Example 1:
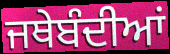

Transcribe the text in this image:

ਜਥੇਬੰਦੀਆਂ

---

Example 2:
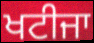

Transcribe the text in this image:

ਖਟੀਜਾ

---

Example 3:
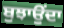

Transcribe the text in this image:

ਬੁਝਾਉਂਦਾ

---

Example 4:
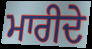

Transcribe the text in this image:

ਮਾਰੀਦੇ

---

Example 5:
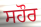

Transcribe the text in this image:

ਸਹੌਰ